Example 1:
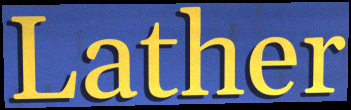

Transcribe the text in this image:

Lather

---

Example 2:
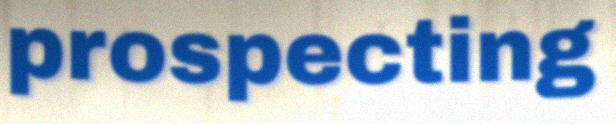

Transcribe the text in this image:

prospecting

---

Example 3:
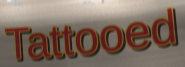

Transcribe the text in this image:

Tattooed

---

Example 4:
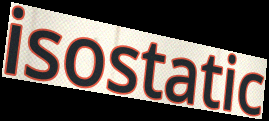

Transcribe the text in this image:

isostatic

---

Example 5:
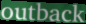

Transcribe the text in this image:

outback